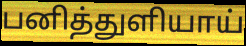
பனித்துளியாய்